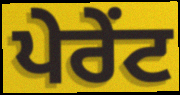
ਪੇਰੇਂਟ